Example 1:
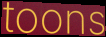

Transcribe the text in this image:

toons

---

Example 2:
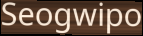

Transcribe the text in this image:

Seogwipo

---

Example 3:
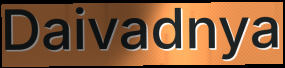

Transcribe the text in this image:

Daivadnya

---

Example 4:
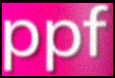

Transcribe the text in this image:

ppf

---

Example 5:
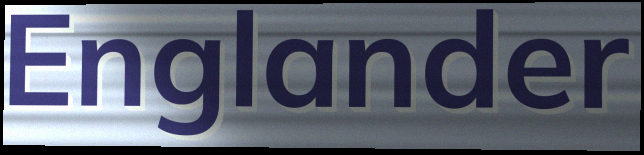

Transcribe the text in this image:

Englander